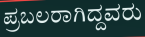
ಪ್ರಬಲರಾಗಿದ್ದವರು